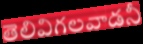
తెలివిగలవాడనీ